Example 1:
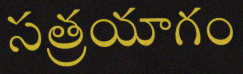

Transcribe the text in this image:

సత్రయాగం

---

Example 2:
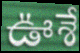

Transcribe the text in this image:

ఊశే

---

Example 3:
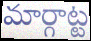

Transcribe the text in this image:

మార్గాట్ట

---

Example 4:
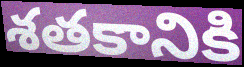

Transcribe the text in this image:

శతకానికి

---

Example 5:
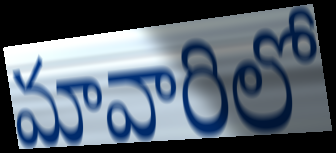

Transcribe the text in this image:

మావారిలో